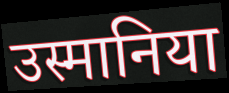
उस्मानिया